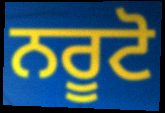
ਨਰੂਟੋ